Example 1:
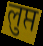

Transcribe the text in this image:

लुप्त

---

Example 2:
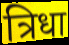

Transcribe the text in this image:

त्रिधा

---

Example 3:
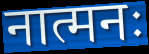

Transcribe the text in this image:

नात्मनः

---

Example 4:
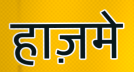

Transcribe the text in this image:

हाज़मे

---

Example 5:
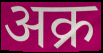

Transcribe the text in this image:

अक्र